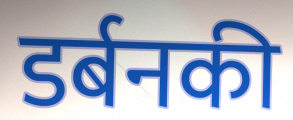
डर्बनकी